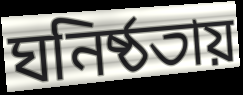
ঘনিষ্ঠতায়